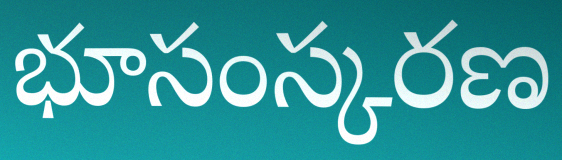
భూసంస్కరణ